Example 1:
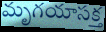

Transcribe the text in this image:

మృగయాసక్త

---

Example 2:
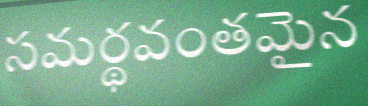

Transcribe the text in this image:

సమర్థవంతమైన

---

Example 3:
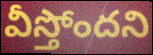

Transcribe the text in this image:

వీస్తోందని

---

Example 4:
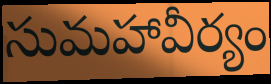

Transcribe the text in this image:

సుమహావీర్యం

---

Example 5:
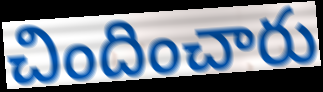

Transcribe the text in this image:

చిందించారు